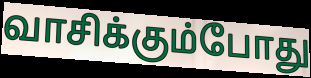
வாசிக்கும்போது